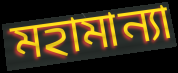
মহামান্যা